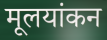
मूलयांकन